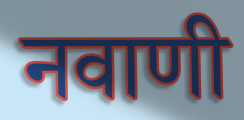
नवाणी